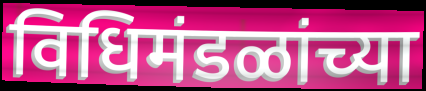
विधिमंडळांच्या